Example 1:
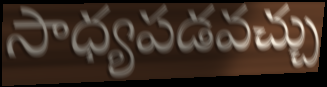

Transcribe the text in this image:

సాధ్యపడవచ్చు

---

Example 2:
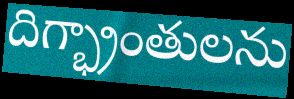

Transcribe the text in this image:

దిగ్భ్రాంతులను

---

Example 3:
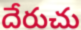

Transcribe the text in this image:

దేరుచు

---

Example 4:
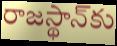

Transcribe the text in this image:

రాజస్థాన్‌కు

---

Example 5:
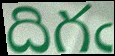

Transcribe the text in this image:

దిగఁ